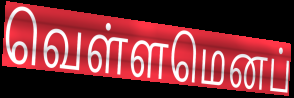
வெள்ளமெனப்